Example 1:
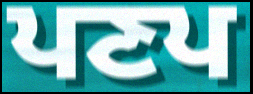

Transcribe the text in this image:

ਪਣਪ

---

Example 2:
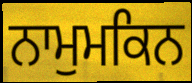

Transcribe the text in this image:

ਨਾਮੁਮਕਿਨ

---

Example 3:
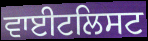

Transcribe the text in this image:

ਵਾਈਟਲਿਸਟ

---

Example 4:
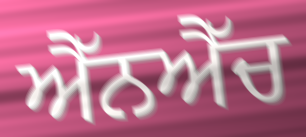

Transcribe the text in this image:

ਐੱਨਐੱਚ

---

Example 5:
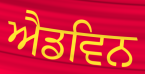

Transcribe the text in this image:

ਐਡਵਿਨ